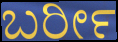
ಬರ್ರೀ